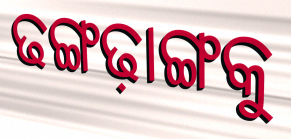
ଢଙ୍ଗଢ଼ାଙ୍ଗକୁ